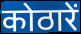
कोठारें